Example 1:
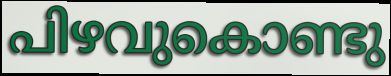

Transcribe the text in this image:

പിഴവുകൊണ്ടു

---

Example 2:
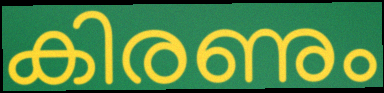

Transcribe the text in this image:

കിരണും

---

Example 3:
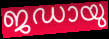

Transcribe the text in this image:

ജഡായു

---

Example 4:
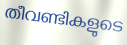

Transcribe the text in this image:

തീവണ്ടികളുടെ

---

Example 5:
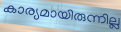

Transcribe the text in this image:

കാര്യമായിരുന്നില്ല